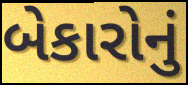
બેકારોનું